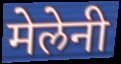
मेलेनी